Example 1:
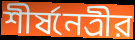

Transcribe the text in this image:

শীর্ষনেত্রীর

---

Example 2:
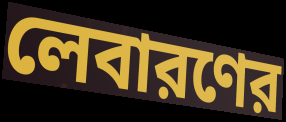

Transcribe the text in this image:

লেবারণের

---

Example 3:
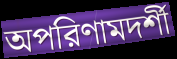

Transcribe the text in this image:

অপরিণামদর্শী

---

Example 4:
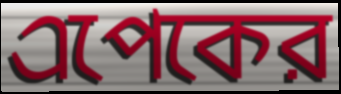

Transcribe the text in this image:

এপেকের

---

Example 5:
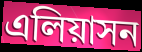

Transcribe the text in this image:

এলিয়াসন